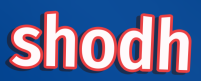
shodh